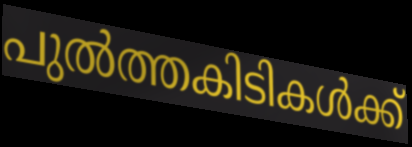
പുൽത്തകിടികൾക്ക്